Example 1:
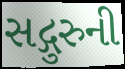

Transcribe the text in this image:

સદ્ગુરુની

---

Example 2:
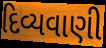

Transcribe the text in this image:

દિવ્યવાણી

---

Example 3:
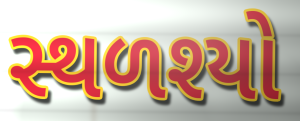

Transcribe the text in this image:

સ્થળશ્યો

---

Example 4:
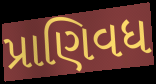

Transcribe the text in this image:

પ્રાણિવધ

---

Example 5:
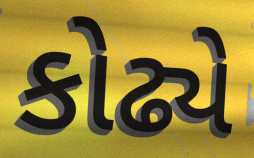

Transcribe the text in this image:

કોઢ્યે